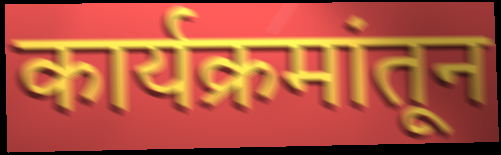
कार्यक्रमांतून